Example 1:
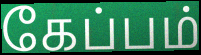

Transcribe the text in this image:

கேப்பம்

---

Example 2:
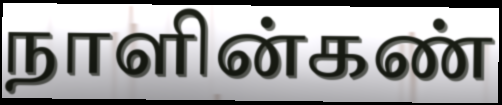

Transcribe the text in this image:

நாளின்கண்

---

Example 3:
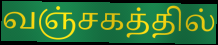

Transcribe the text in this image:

வஞ்சகத்தில்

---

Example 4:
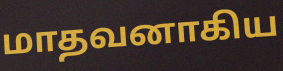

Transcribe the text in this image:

மாதவனாகிய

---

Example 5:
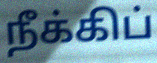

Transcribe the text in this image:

நீக்கிப்